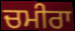
ਚਮੀਰਾ